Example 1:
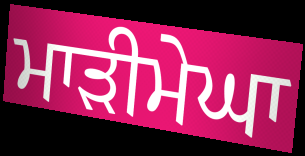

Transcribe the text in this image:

ਮਾੜੀਮੇਘਾ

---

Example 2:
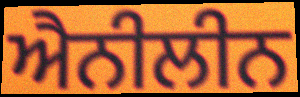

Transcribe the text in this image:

ਐਨੀਲੀਨ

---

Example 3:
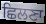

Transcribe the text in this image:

ਛਿਲਣਾ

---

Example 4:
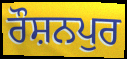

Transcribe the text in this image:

ਰੌਸ਼ਨਪੁਰ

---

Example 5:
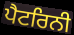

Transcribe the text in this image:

ਪੈਟਰਿਨੀ